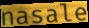
nasale